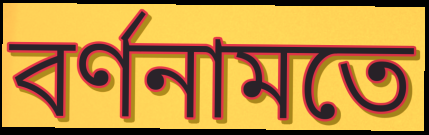
বর্ণনামতে